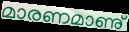
മാരണമാണു്